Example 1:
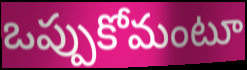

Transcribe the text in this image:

ఒప్పుకోమంటూ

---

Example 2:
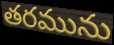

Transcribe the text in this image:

తరమును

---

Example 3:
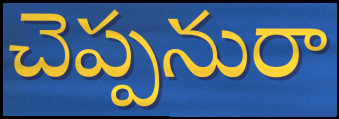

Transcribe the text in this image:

చెప్పనురా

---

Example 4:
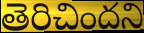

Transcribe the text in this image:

తెరిచిందని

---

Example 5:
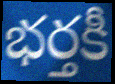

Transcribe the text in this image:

భర్తకీ